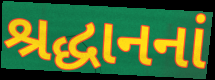
શ્રદ્ધાનનાં